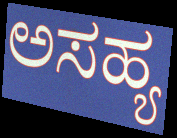
ಅಸಹ್ಯ